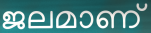
ജലമാണ്